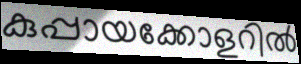
കുപ്പായക്കോളറിൽ